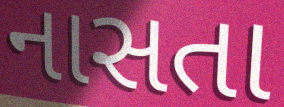
નાસતા